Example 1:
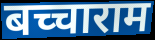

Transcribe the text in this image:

बच्चाराम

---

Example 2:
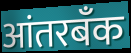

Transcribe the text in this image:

आंतरबँक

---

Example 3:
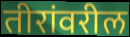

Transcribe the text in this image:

तीरांवरील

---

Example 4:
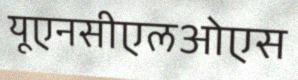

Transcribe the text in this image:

यूएनसीएलओएस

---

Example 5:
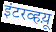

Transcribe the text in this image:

इंटरव्हय़ू